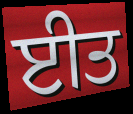
ਈਤ